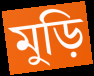
মুড়ি